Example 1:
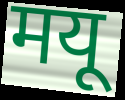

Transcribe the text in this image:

मयू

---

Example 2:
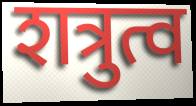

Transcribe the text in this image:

शत्रुत्व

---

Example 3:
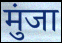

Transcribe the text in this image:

मुंजा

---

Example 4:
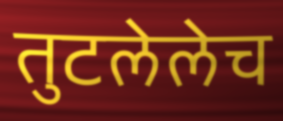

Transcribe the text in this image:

तुटलेलेच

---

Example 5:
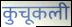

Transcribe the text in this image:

कुचूकली